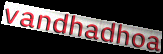
vandhadhoa